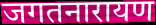
जगतनारायण